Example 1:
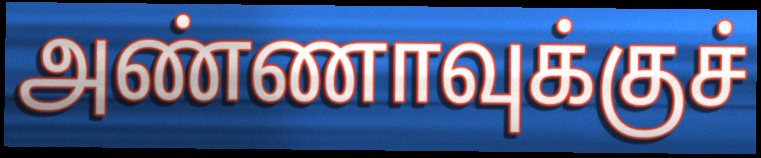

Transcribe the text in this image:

அண்ணாவுக்குச்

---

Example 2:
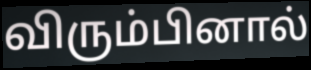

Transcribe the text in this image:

விரும்பினால்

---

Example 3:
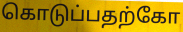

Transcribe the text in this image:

கொடுப்பதற்கோ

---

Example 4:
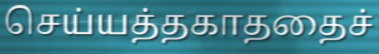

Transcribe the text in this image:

செய்யத்தகாததைச்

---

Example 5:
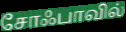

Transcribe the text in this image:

சோஃபாவில்